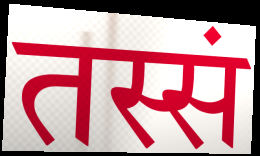
तस्सं